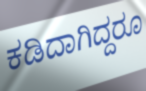
ಕಡಿದಾಗಿದ್ದರೂ